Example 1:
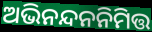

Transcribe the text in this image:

ଅଭିନନ୍ଦନନିମିତ୍ତ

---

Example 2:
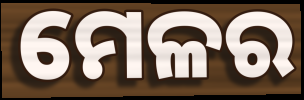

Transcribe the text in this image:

ମେଳର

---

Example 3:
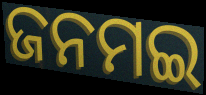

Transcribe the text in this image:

ଜନମଇ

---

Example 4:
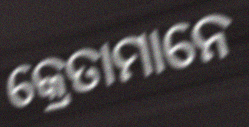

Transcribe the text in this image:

କ୍ରେତାମାନେ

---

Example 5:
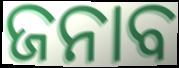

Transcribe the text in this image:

ଜନାବ